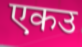
एकउ